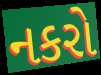
નકરો